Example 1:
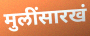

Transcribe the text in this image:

मुलींसारखं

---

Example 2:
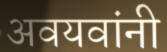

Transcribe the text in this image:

अवयवांनी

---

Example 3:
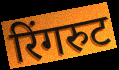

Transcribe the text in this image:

रिंगरुट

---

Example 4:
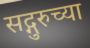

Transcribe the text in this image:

सद्गुरुच्या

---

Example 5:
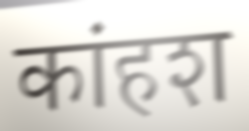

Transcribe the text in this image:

कांहश